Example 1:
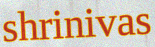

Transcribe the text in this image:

shrinivas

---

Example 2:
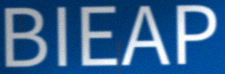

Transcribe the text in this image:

BIEAP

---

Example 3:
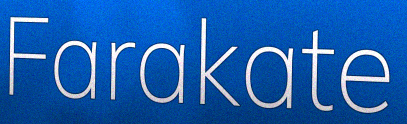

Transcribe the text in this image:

Farakate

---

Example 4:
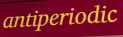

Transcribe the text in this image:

antiperiodic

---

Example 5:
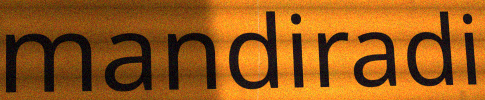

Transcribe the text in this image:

mandiradi